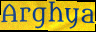
Arghya